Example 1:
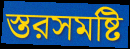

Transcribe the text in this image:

স্তরসমষ্টি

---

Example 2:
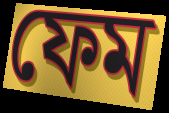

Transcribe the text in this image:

ফেম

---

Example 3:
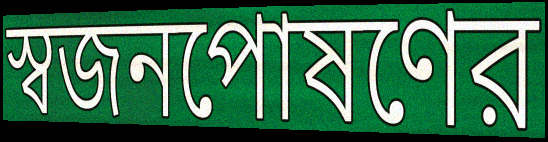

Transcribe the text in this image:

স্বজনপোষণের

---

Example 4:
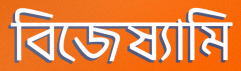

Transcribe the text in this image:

বিজেষ্যামি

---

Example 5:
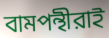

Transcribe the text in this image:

বামপন্থীরাই